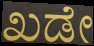
ಖಡೇ